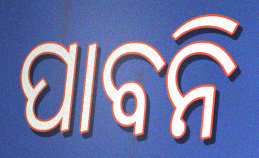
ପାବନି